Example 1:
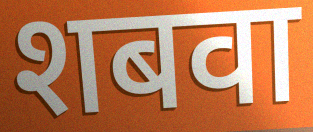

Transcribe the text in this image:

शबवा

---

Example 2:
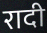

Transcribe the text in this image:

रादी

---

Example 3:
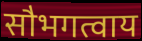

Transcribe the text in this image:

सौभगत्वाय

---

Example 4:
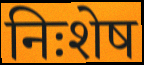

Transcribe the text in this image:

निःशेष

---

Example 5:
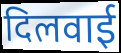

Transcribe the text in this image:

दिलवाई